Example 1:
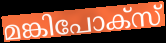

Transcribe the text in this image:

മങ്കിപോക്സ്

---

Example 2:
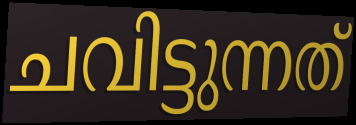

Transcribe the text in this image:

ചവിട്ടുന്നത്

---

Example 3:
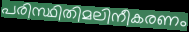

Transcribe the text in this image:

പരിസ്ഥിതിമലിനീകരണം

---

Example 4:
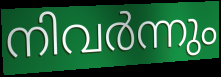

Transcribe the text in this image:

നിവർന്നും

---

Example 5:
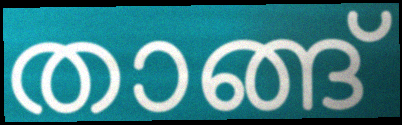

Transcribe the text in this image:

താങ്ങ്